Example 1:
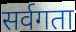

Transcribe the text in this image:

सर्वगता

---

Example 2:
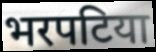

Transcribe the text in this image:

भरपटिया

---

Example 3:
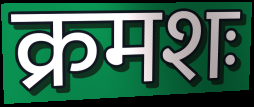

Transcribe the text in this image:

क्रमशः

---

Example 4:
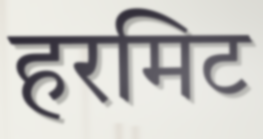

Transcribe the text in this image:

हरमिट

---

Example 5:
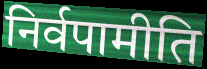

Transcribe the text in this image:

निर्वपामीति